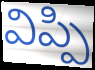
విప్పి